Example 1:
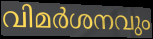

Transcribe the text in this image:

വിമർശനവും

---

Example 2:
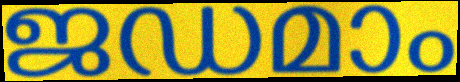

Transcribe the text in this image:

ജഡമാം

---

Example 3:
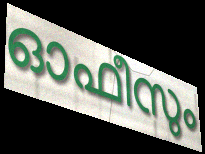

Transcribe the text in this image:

ഓഫീസും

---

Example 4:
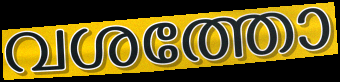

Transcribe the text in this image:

വശത്തോ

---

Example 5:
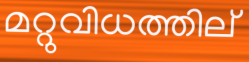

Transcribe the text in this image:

മറ്റുവിധത്തില്